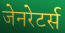
जेनरेटर्स